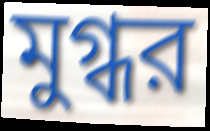
মুগ্ধর